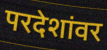
परदेशांवर